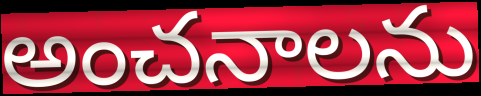
అంచనాలను